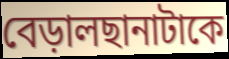
বেড়ালছানাটাকে